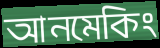
আনমেকিং